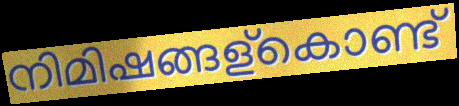
നിമിഷങ്ങള്കൊണ്ട്